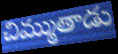
చిమ్ముతాడు